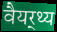
वैयर्थ्य